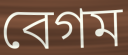
বেগম